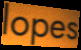
lopes